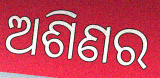
ଅଶିଣର